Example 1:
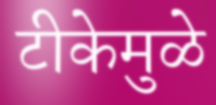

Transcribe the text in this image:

टीकेमुळे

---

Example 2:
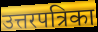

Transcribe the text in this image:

उत्तरपत्रिका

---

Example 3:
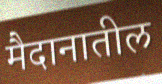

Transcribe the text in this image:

मैदानातील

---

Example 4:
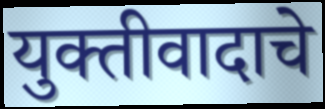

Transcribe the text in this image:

युक्तीवादाचे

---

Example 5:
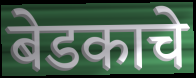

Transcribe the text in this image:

बेडकाचे